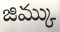
జిమ్కు